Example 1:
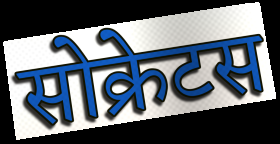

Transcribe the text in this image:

सोक्रेटस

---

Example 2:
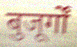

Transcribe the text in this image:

बुजूर्गों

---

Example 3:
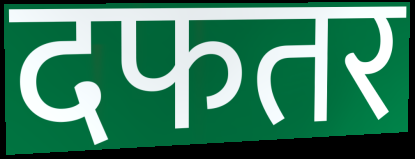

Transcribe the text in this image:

दफतर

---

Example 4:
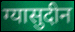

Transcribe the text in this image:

ग्यासुदीन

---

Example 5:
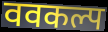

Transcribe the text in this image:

ववकल्प